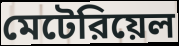
মেটেরিয়েল